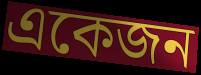
একেজন